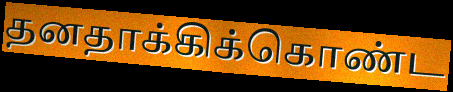
தனதாக்கிக்கொண்ட